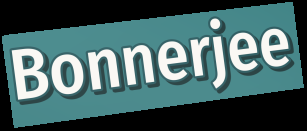
Bonnerjee